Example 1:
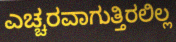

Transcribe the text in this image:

ಎಚ್ಚರವಾಗುತ್ತಿರಲಿಲ್ಲ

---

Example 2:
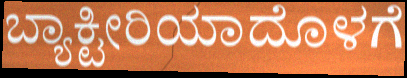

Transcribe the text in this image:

ಬ್ಯಾಕ್ಟೀರಿಯಾದೊಳಗೆ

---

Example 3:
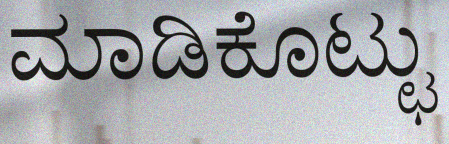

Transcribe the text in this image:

ಮಾಡಿಕೊಟ್ಟು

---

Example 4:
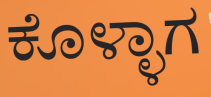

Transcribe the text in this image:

ಕೊಳ್ಳಾಗ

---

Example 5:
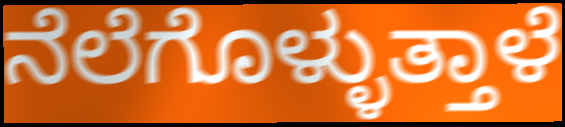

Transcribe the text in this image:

ನೆಲೆಗೊಳ್ಳುತ್ತಾಳೆ